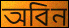
অবিন